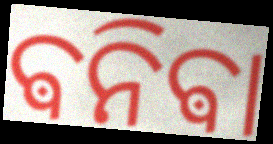
ଵନିଵା